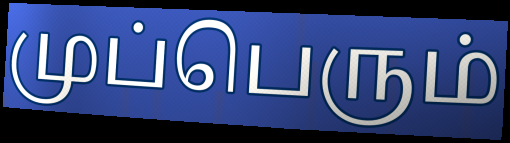
முப்பெரும்